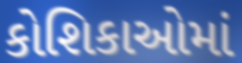
કોશિકાઓમાં